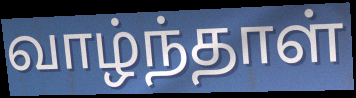
வாழ்ந்தாள்